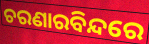
ଚରଣାରବିନ୍ଦରେ